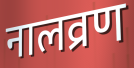
नालव्रण